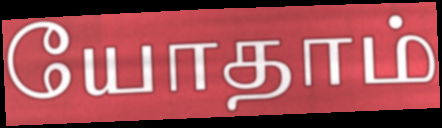
யோதாம்